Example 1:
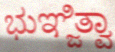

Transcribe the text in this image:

ಭುಞ್ಜಿತ್ವಾ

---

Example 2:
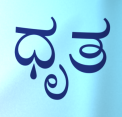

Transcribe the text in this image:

ಧೃತ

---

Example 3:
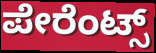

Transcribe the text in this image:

ಪೇರೆಂಟ್ಸ್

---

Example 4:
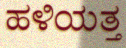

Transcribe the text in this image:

ಹಳಿಯತ್ತ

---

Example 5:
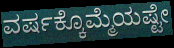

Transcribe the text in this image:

ವರ್ಷಕ್ಕೊಮ್ಮೆಯಷ್ಟೇ